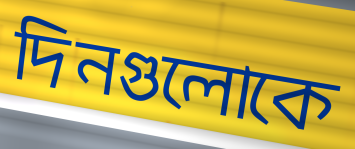
দিনগুলোকে